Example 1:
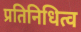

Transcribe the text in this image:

प्रतिनिधित्व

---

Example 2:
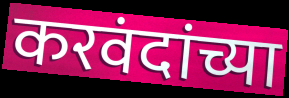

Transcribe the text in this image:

करवंदांच्या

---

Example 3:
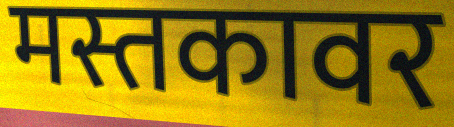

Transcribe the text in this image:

मस्तकावर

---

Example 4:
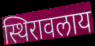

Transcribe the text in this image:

स्थिरावलाय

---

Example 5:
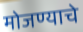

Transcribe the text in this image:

मोजण्याचे